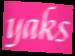
yaks